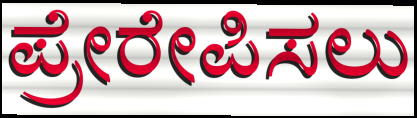
ಪ್ರೇರೇಪಿಸಲು